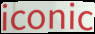
iconic